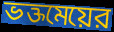
ভক্তমেয়ের